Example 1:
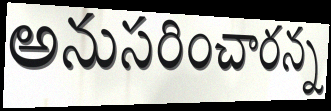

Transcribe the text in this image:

అనుసరించారన్న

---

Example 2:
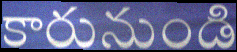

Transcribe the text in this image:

కారునుండి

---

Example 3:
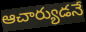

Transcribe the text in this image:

ఆచార్యుడనే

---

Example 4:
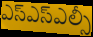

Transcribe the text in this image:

ఎస్ఎస్ఎల్సీ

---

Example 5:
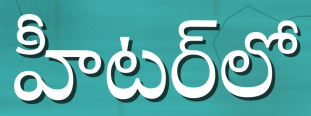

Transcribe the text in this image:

హీటర్‌లో